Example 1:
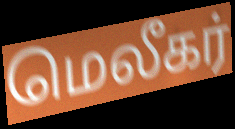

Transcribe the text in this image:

மெலீகர்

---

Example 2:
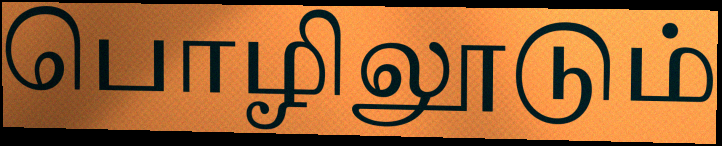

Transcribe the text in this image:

பொழிலூடும்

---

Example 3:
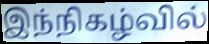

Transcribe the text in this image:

இந்நிகழ்வில்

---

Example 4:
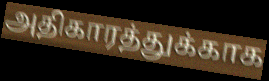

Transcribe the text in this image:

அதிகாரத்துக்காக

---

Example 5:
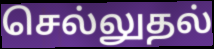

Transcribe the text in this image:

செல்லுதல்